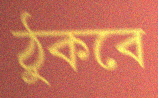
ঠুকবে